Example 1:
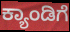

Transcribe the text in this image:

ಕ್ಯಾಂಡಿಗೆ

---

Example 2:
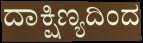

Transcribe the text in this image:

ದಾಕ್ಷಿಣ್ಯದಿಂದ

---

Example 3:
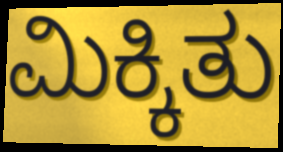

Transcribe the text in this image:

ಮಿಕ್ಕಿತು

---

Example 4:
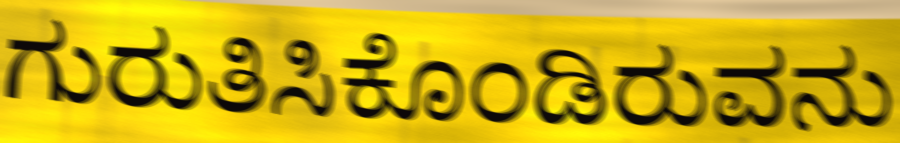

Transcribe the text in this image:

ಗುರುತಿಸಿಕೊಂಡಿರುವನು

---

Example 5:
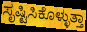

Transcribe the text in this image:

ಸೃಷ್ಟಿಸಿಕೊಳ್ಳುತ್ತಾ